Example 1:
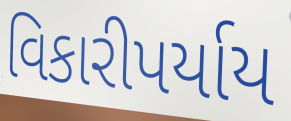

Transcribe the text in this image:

વિકારીપર્યાય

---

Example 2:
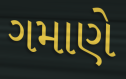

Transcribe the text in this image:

ગમાણે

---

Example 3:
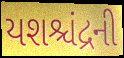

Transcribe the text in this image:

યશશ્ચંદ્રની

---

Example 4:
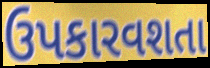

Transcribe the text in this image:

ઉપકારવશતા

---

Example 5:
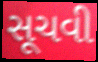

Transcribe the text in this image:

સૂચવી